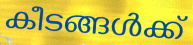
കീടങ്ങൾക്ക്